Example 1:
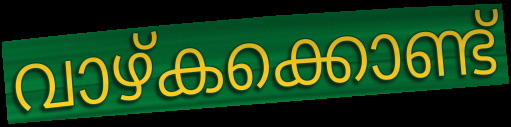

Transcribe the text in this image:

വാഴ്കക്കൊണ്ട്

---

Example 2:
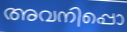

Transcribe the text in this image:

അവനിപ്പൊ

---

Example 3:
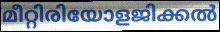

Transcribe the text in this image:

മീറ്റിരിയോളജിക്കൽ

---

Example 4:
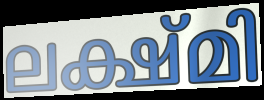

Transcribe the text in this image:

ലക്ഷ്‌മി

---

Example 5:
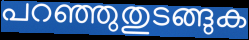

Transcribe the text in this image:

പറഞ്ഞുതുടങ്ങുക